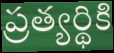
ప్రత్యర్థికి